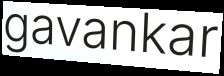
gavankar